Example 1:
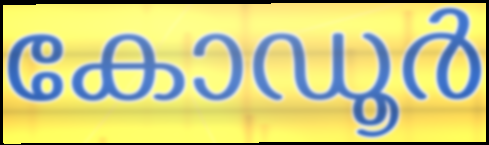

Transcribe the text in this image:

കോഡൂർ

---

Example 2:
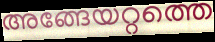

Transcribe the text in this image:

അങ്ങേയറ്റത്തെ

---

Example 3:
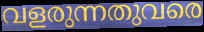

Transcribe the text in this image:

വളരുന്നതുവരെ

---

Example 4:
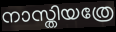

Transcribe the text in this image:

നാസ്തിയത്രേ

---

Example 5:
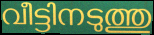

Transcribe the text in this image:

വീട്ടിനടുത്തു